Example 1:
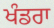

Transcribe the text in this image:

ਖੰਡਰਾ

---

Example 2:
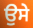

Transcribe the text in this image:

ਉਸੇ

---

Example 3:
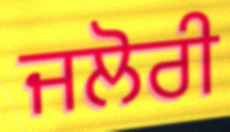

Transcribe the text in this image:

ਜਲੋਰੀ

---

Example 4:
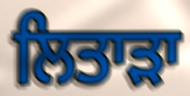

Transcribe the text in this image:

ਲਿਤਾੜਾ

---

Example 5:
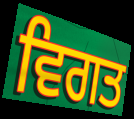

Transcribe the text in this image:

ਵਿਗਤ